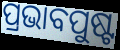
ପ୍ରଭାବପୁଷ୍ଟ